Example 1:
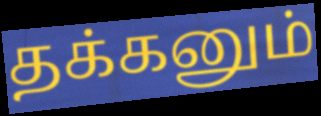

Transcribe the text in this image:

தக்கனும்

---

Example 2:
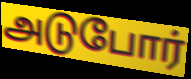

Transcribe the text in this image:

அடுபோர்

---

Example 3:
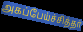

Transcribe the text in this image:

அகப்பேய்ச்சித்தர்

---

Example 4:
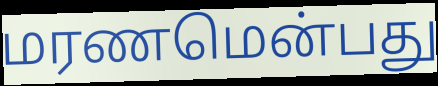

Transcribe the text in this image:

மரணமென்பது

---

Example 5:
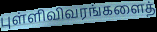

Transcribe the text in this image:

புள்ளிவிவரங்களைத்